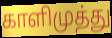
காளிமுத்து